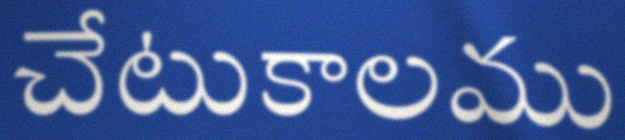
చేటుకాలము